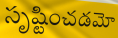
సృష్టించడమో